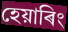
হেয়াৰিং